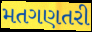
મતગણતરી